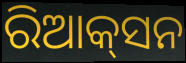
ରିଆକ୍‌ସନ